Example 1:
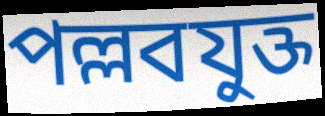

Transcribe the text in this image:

পল্লবযুক্ত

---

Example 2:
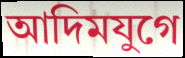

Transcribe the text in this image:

আদিমযুগে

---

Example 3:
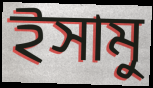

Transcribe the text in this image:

ইসামু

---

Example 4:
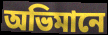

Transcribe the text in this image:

অভিমানে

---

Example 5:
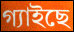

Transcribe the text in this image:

গ্যাইছে